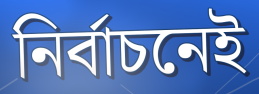
নির্বাচনেই